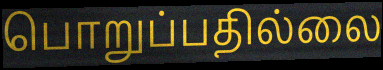
பொறுப்பதில்லை